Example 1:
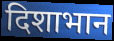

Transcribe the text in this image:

दिशाभान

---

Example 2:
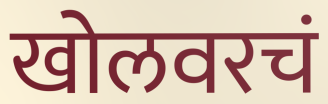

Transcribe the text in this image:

खोलवरचं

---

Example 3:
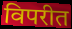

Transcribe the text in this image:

विपरीत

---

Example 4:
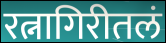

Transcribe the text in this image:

रत्नागिरीतलं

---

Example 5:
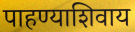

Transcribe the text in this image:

पाहण्याशिवाय